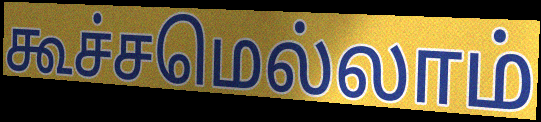
கூச்சமெல்லாம்